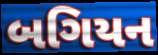
બગિયન